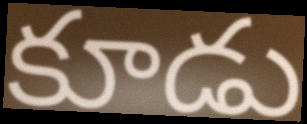
కూడు